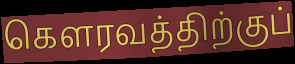
கௌரவத்திற்குப்